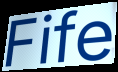
Fife